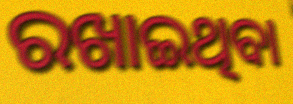
ରଖାଇଥିବା